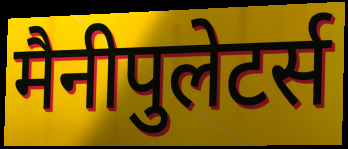
मैनीपुलेटर्स